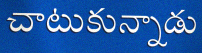
చాటుకున్నాడు